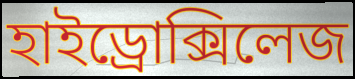
হাইড্রোক্সিলেজ